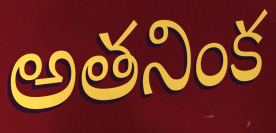
అతనింక